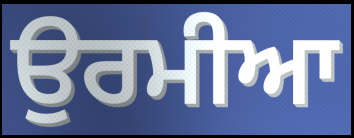
ਉਰਮੀਆ